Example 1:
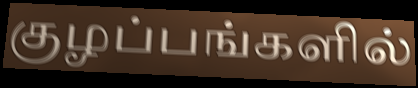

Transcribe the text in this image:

குழப்பங்களில்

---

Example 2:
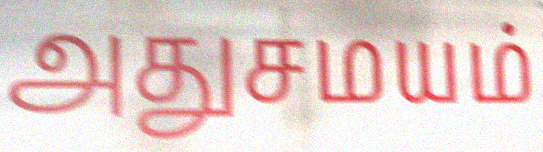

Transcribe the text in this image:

அதுசமயம்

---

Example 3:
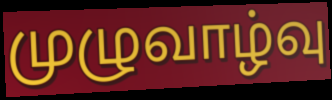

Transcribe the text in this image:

முழுவாழ்வு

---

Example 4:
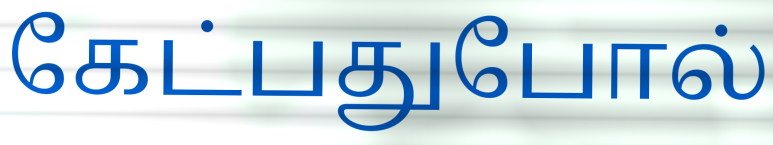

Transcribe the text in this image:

கேட்பதுபோல்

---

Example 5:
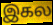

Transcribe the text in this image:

இகல